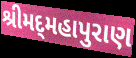
શ્રીમદ્‌મહાપુરાણ